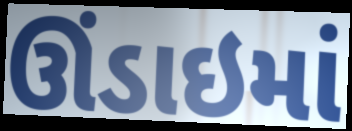
ઊંડાઇમાં